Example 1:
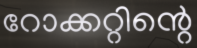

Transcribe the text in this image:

റോക്കറ്റിന്റെ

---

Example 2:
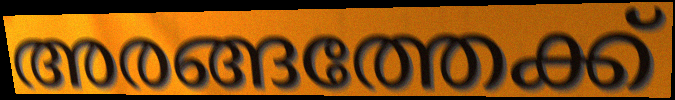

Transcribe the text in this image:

അരങ്ങത്തേക്ക്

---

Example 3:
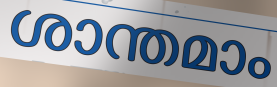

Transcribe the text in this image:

ശാന്തമാം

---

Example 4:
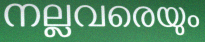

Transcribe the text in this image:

നല്ലവരെയും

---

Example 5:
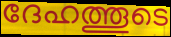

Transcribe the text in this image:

ദേഹത്തൂടെ